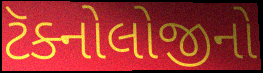
ટૅક્નોલોજીનો